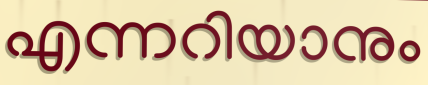
എന്നറിയാനും